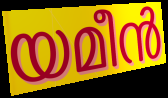
യമീൻ